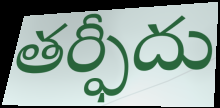
తర్ఫీదు